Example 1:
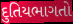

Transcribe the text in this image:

દુતિયભાગતો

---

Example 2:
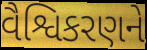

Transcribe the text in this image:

વૈશ્વિકરણને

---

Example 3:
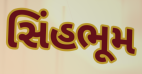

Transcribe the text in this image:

સિંહભૂમ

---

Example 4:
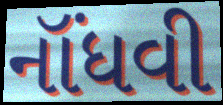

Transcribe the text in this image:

નૉંધવી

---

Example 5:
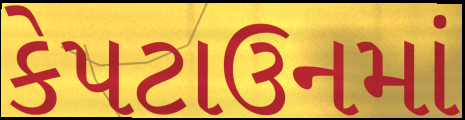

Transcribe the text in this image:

કેપટાઉનમાં